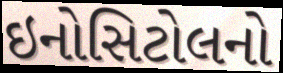
ઇનોસિટોલનો